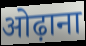
ओढ़ाना